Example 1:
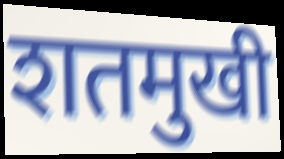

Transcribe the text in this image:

शतमुखी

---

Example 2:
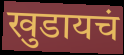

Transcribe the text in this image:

खुडायचं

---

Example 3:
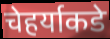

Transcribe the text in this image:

चेहर्याकडे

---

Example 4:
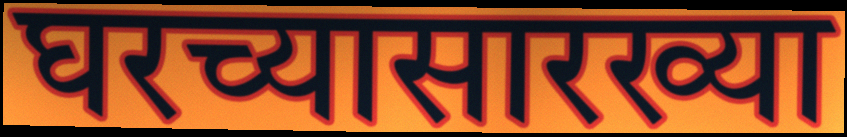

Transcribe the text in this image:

घरच्यासारख्या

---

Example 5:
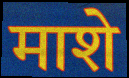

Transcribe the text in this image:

माशे